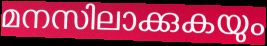
മനസിലാക്കുകയും